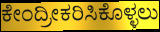
ಕೇಂದ್ರೀಕರಿಸಿಕೊಳ್ಳಲು